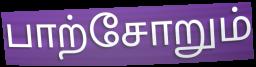
பாற்சோறும்